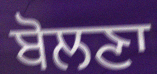
ਬੋਲਣਾ